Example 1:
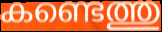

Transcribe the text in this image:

കണ്ടെത്തു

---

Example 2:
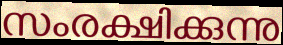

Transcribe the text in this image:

സംരക്ഷിക്കുന്നു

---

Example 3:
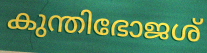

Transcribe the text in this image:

കുന്തിഭോജശ്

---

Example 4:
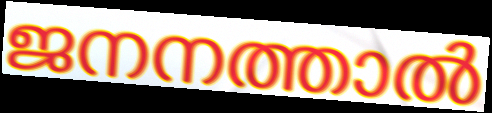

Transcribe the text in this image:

ജനനത്താൽ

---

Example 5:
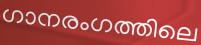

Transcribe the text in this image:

ഗാനരംഗത്തിലെ